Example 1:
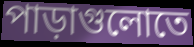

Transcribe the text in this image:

পাড়াগুলোতে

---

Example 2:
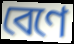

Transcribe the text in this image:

বেণে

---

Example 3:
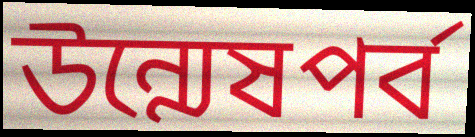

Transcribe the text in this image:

উন্মেষপর্ব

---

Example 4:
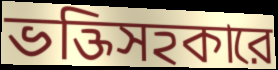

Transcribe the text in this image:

ভক্তিসহকারে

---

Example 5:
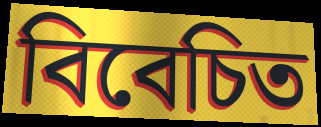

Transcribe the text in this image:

বিবেচিত